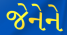
જેનેને